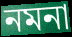
নমনা